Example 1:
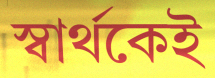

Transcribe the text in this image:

স্বার্থকেই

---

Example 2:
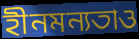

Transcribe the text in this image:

হীনমন্যতাও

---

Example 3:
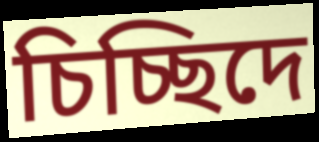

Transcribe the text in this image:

চিচ্ছিদে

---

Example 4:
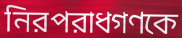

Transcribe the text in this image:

নিরপরাধগণকে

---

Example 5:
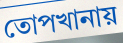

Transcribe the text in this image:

তোপখানায়